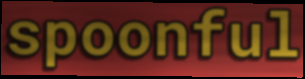
spoonful